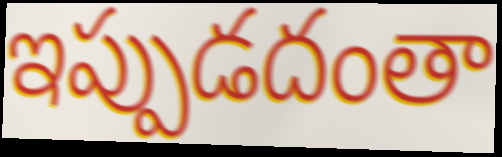
ఇప్పుడదంతా